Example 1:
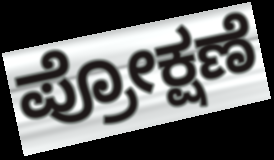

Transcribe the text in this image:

ಪ್ರೋಕ್ಷಣೆ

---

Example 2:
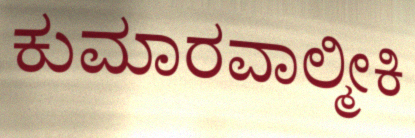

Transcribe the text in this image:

ಕುಮಾರವಾಲ್ಮೀಕಿ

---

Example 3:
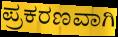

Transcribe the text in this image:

ಪ್ರಕರಣವಾಗಿ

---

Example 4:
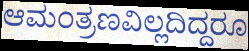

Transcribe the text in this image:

ಆಮಂತ್ರಣವಿಲ್ಲದಿದ್ದರೂ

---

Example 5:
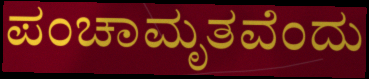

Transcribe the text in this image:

ಪಂಚಾಮೃತವೆಂದು